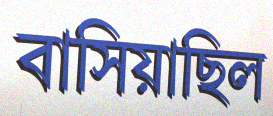
বাসিয়াছিল